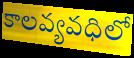
కాలవ్యవధిలో